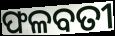
ଫଳବତୀ